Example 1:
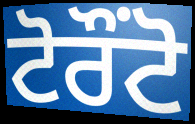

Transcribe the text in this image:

ਟੋਰੌੰਟੋ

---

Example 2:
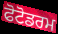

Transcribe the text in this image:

ਫੋਟੋਡਰਮ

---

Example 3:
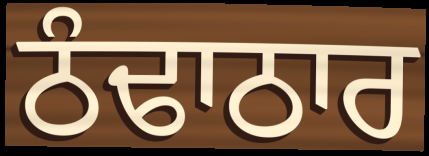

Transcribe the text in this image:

ਠੰਢਾਠਾਰ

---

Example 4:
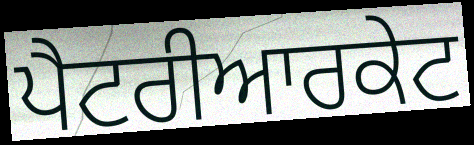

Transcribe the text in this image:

ਪੈਟਰੀਆਰਕੇਟ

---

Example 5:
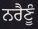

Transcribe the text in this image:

ਨਰੈਣੂੰ